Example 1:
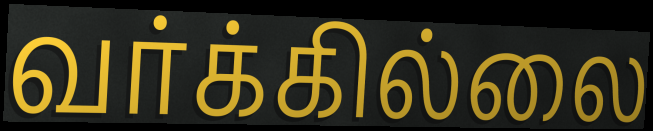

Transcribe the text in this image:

வர்க்கில்லை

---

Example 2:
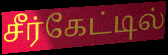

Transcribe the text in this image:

சீர்கேட்டில்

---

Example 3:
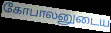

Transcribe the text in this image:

கோபாலனுடைய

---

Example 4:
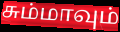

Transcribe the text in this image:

சும்மாவும்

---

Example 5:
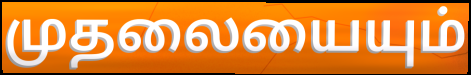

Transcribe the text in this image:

முதலையையும்